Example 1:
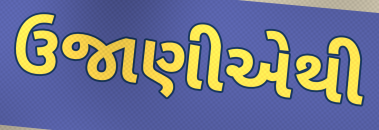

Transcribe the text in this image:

ઉજાણીએથી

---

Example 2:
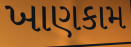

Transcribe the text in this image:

ખાણકામ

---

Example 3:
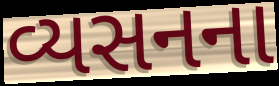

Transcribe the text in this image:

વ્યસનના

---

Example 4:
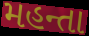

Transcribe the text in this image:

મહન્તા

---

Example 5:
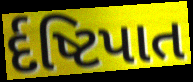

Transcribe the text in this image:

ર્દષ્ટિપાત